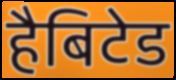
हैबिटेड